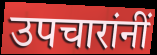
उपचारांनीं